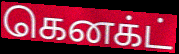
கெனக்ட்